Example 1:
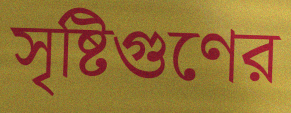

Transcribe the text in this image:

সৃষ্টিগুণের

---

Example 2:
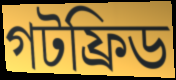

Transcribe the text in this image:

গটফ্রিড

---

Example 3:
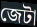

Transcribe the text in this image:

জেটা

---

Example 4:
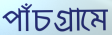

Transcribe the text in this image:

পাঁচগ্রামে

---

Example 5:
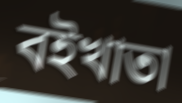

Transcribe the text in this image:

বইখাতা